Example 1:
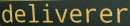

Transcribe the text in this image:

deliverer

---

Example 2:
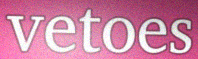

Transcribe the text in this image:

vetoes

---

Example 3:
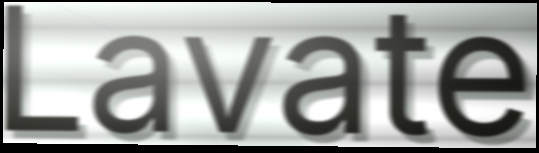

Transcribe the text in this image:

Lavate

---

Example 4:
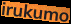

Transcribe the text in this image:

irukumo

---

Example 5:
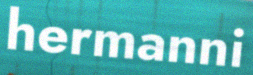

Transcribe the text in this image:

hermanni